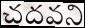
చదవని